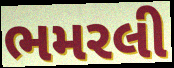
ભમરલી